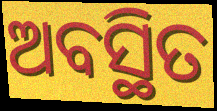
ଅବସ୍ଥିତ